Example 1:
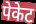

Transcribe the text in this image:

पेकेट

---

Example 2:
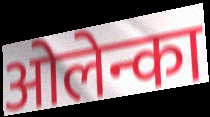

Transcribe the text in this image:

ओलेन्का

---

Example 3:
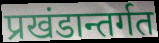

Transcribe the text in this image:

प्रखंडान्तर्गत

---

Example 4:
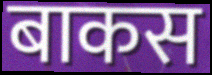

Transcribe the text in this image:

बाकस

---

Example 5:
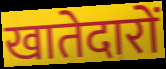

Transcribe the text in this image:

खातेदारों